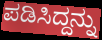
ಪಡಿಸಿದ್ದನ್ನು